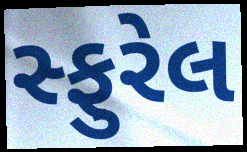
સ્ફુરેલ